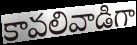
కావలివాడిగా